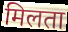
मिलता